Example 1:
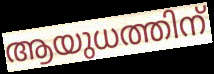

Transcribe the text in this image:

ആയുധത്തിന്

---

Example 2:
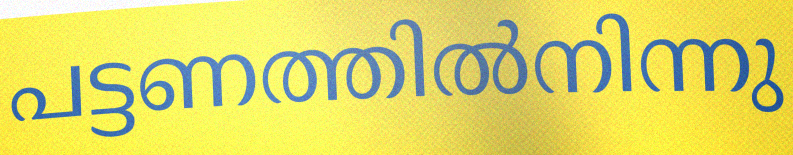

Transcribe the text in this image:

പട്ടണത്തിൽനിന്നു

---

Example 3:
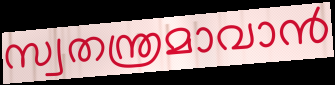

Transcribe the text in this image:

സ്വതന്ത്രമാവാൻ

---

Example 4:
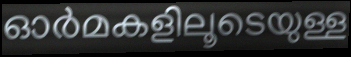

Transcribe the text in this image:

ഓർമകളിലൂടെയുള്ള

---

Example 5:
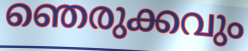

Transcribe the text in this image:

ഞെരുക്കവും